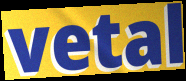
vetal